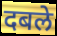
दबले